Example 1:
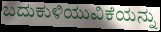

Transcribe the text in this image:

ಬದುಕುಳಿಯುವಿಕೆಯನ್ನು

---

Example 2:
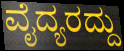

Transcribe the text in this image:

ವೈದ್ಯರದ್ದು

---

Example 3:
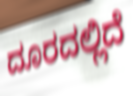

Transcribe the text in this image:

ದೂರದಲ್ಲಿದೆ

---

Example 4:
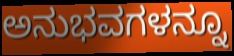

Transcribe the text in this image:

ಅನುಭವಗಳನ್ನೂ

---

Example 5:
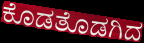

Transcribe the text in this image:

ಕೊಡತೊಡಗಿದ